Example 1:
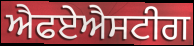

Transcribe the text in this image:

ਐਫਏਐਸਟੀਗ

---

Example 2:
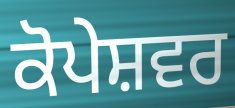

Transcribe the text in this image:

ਕੋਪੇਸ਼ਵਰ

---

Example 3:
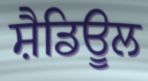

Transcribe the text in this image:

ਸ਼ੈਡਿਊਲ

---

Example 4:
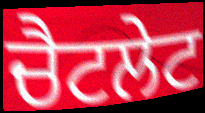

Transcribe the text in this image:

ਚੈਟਲੇਟ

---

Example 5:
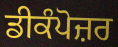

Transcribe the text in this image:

ਡੀਕੰਪੋਜ਼ਰ